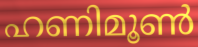
ഹണിമൂൺ